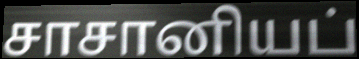
சாசானியப்